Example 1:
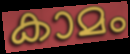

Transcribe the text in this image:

കാമം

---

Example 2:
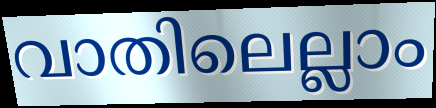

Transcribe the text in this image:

വാതിലെല്ലാം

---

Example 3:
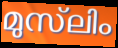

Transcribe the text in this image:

മുസ്‌ലിം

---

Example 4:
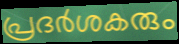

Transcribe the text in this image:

പ്രദർശകരും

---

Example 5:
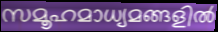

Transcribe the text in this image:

സമൂഹമാധ്യമങ്ങളിൽ